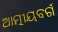
ଆତ୍ମୀୟବର୍ଗ